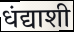
धंद्याशी